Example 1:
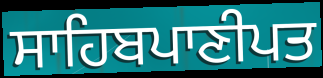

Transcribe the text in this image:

ਸਾਹਿਬਪਾਣੀਪਤ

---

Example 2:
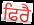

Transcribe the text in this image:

ਫਿਰੈ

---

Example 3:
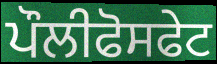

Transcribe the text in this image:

ਪੌਲੀਫੋਸਫੇਟ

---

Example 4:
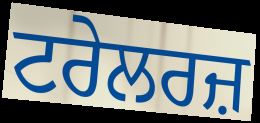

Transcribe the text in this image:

ਟਰੇਲਰਜ਼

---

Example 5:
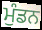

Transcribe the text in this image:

ਮੁੰਡਨ